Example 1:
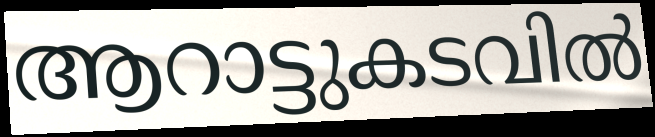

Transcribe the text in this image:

ആറാട്ടുകടവിൽ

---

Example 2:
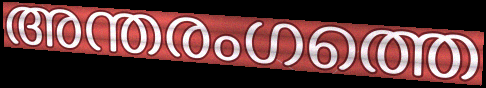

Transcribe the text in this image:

അന്തരംഗത്തെ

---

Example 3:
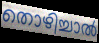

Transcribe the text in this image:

തൊഴിച്ചാൽ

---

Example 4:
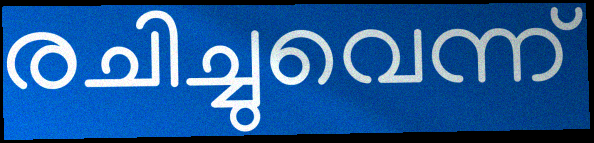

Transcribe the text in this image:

രചിച്ചുവെന്ന്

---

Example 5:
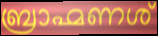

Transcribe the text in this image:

ബ്രാഹ്മണശ്